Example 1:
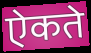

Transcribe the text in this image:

ऐकते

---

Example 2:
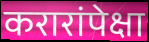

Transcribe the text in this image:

करारांपेक्षा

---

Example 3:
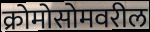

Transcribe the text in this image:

क्रोमोसोमवरील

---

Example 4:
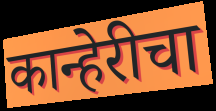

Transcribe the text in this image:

कान्हेरीचा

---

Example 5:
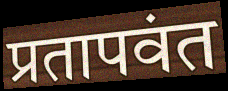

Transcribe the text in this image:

प्रतापवंत